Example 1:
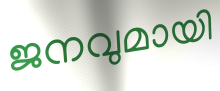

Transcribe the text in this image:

ജനവുമായി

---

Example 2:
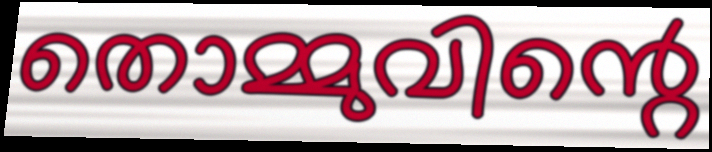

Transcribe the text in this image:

തൊമ്മുവിന്റെ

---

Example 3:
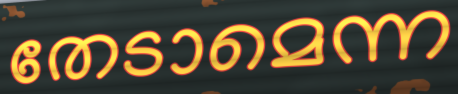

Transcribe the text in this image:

തേടാമെന്ന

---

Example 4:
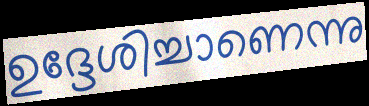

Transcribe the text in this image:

ഉദ്ദേശിച്ചാണെന്നു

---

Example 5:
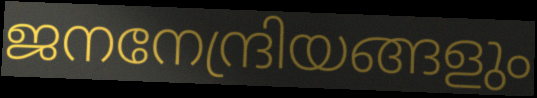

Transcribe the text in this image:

ജനനേന്ദ്രിയങ്ങളും